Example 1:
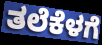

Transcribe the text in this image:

ತಲೆಕೆಳಗೆ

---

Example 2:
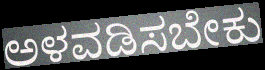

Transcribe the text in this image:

ಅಳವಡಿಸಬೇಕು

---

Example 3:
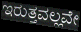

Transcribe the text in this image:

ಇರುತ್ತವಲ್ಲವೇ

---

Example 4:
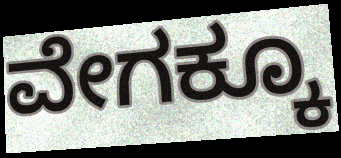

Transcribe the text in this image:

ವೇಗಕ್ಕೂ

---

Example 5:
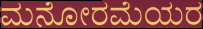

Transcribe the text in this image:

ಮನೋರಮೆಯರ